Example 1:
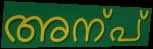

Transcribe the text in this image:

അന്പ്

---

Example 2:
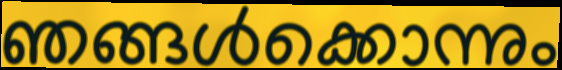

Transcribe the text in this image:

ഞങ്ങൾക്കൊന്നും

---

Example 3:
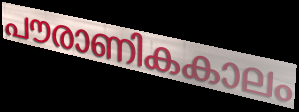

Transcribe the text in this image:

പൗരാണികകാലം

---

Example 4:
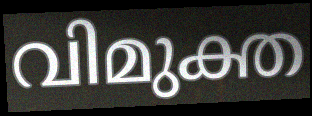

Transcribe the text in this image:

വിമുക്ത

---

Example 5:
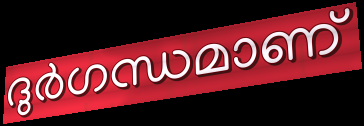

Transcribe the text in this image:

ദുർഗന്ധമാണ്